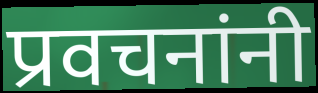
प्रवचनांनी